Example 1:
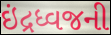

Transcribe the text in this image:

ઇંદ્રધ્વજની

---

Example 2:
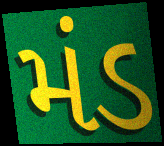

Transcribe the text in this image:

મંડ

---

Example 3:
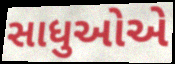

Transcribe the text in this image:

સાધુઓએ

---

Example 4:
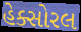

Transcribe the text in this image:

હેક્સોરલ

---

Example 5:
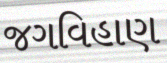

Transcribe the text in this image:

જગવિહાણ